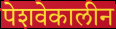
पेशवेकालीन